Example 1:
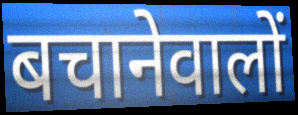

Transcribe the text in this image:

बचानेवालों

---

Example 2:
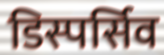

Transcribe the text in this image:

डिस्पर्सिव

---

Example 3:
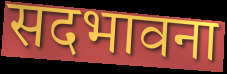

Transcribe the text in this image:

सदभावना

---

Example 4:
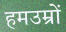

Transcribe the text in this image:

हमउम्रों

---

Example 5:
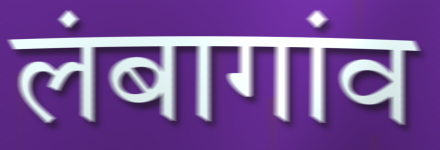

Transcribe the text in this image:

लंबागांव